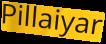
Pillaiyar